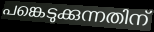
പങ്കെടുക്കുന്നതിന്